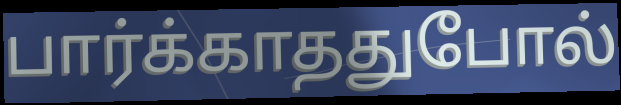
பார்க்காததுபோல்